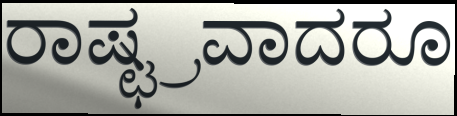
ರಾಷ್ಟ್ರವಾದರೂ